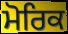
ਮੋਰਿਕ